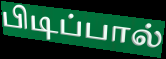
பிடிப்பால்